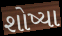
શોષ્યા